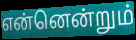
என்னென்றும்